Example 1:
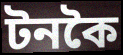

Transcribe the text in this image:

টনকৈ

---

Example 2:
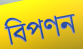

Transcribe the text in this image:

বিপণন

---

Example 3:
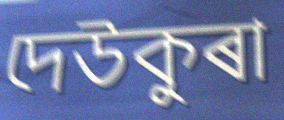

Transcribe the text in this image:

দেউকুৰা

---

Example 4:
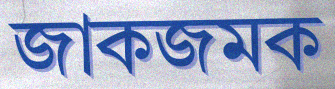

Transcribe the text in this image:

জাকজমক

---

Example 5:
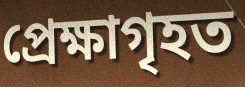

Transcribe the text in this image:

প্ৰেক্ষাগৃহত